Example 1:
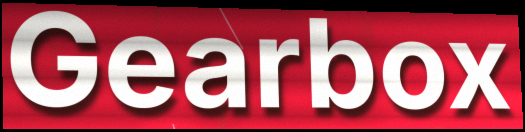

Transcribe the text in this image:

Gearbox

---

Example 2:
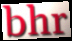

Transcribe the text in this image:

bhr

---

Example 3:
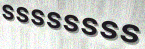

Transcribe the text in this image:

ssssssss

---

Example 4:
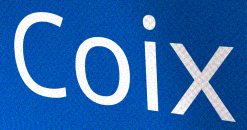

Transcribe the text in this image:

Coix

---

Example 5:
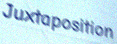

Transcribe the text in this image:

Juxtaposition